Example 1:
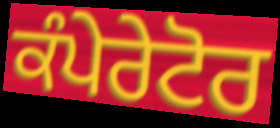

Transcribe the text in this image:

ਕੰਪੇਰੇਟੋਰ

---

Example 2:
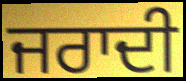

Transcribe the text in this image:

ਜਰਾਦੀ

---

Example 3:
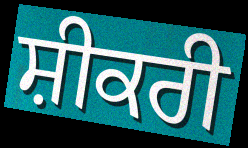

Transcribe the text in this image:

ਸ਼ੀਕਰੀ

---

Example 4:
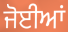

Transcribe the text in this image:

ਜੋਈਆਂ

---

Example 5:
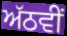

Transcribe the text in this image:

ਅੱਠਵੀਂ